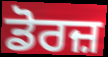
ਡੋਰਜ਼